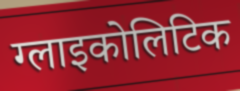
ग्लाइकोलिटिक